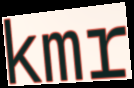
kmr